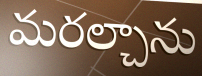
మరల్చాను